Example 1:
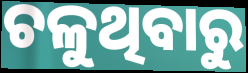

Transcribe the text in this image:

ଚଳୁଥିବାରୁ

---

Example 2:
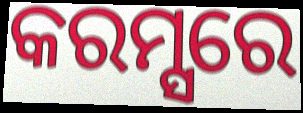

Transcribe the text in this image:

କରମ୍ସରେ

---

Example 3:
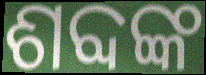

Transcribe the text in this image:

ଶବ୍ଦଙ୍କ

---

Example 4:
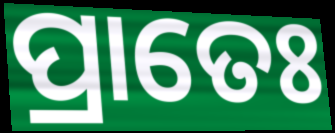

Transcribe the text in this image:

ପ୍ରାତେଃ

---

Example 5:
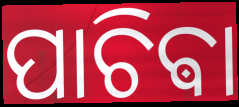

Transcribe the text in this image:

ପାଚିଵା